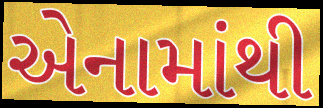
એનામાંથી